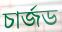
চার্জড